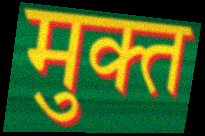
मुक्त